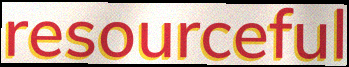
resourceful